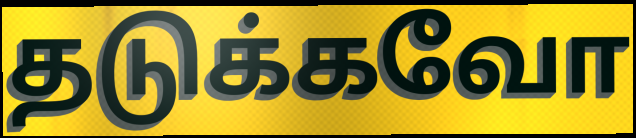
தடுக்கவோ